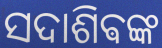
ସଦାଶିଵଙ୍କ